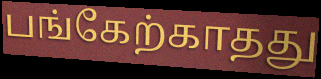
பங்கேற்காதது